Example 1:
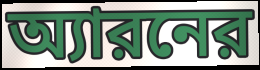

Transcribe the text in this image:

অ্যারনের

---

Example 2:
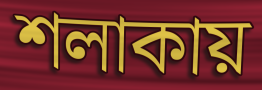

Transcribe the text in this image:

শলাকায়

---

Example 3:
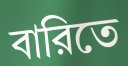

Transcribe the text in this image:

বারিতে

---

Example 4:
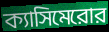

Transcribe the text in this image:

ক্যাসিমেরোর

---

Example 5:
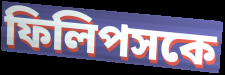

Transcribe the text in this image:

ফিলিপসকে